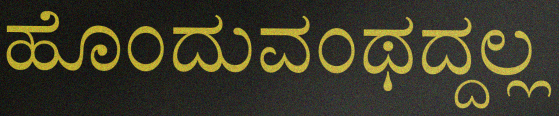
ಹೊಂದುವಂಥದ್ದಲ್ಲ